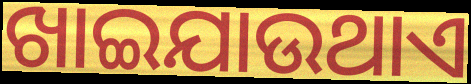
ଖାଇଯାଉଥାଏ